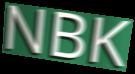
NBK